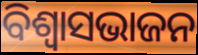
ବିଶ୍ଵାସଭାଜନ